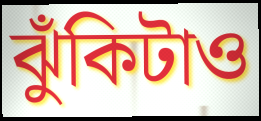
ঝুঁকিটাও